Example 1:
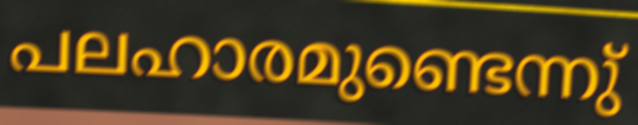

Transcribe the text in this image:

പലഹാരമുണ്ടെന്നു്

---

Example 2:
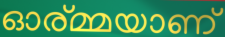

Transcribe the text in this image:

ഓര്മ്മയാണ്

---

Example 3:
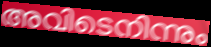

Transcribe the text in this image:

അവിടെനിന്നും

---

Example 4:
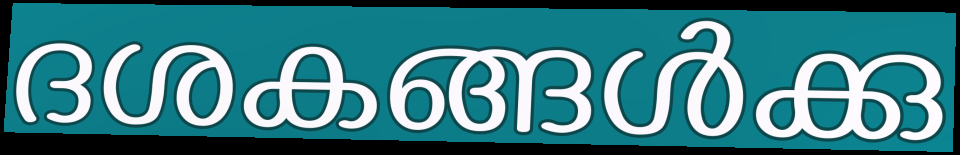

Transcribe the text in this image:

ദശകങ്ങൾക്കു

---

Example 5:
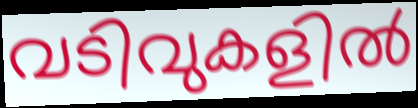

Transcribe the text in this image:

വടിവുകളിൽ